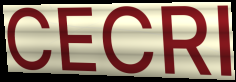
CECRI